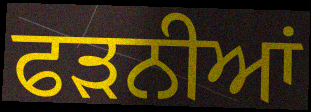
ਫੜਨੀਆਂ